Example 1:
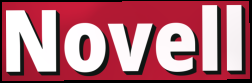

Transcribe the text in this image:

Novell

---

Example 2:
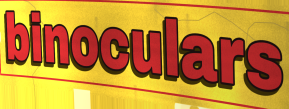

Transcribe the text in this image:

binoculars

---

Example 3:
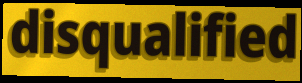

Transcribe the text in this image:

disqualified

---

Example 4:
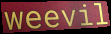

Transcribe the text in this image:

weevil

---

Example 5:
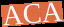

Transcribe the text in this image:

ACA